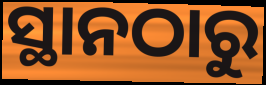
ସ୍ଥାନଠାରୁ